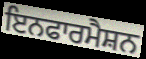
ਇਨਫਾਰਮੈਸ਼ਨ